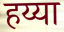
हय्या